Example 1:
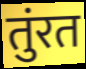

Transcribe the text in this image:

तुंरत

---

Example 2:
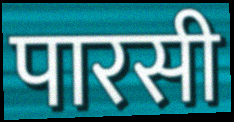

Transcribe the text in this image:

पारसी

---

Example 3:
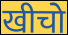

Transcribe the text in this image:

खीचो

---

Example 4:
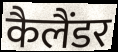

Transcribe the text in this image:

कैलैंडर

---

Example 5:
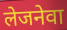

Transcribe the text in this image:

लेजनेवा